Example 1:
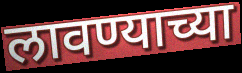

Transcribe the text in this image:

लावण्याच्या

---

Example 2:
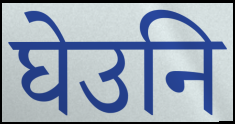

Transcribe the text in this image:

घेउनि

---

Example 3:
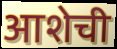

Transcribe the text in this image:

आशेची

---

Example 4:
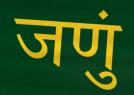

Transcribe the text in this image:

जणुं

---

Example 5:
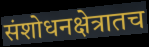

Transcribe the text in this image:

संशोधनक्षेत्रातच